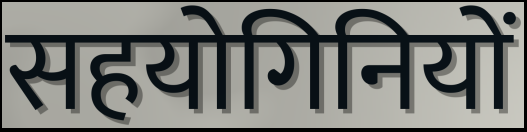
सहयोगिनियों